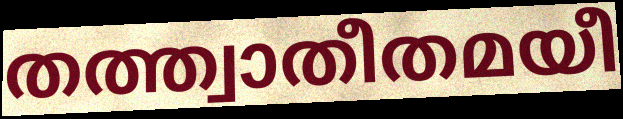
തത്ത്വാതീതമയീ